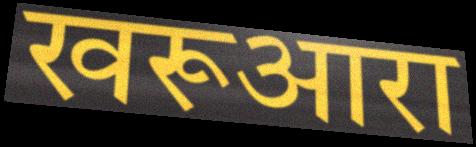
खरूआरा